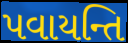
પવાયન્તિ